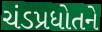
ચંડપ્રધોતને